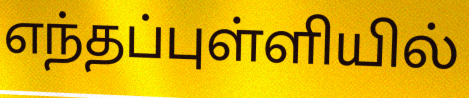
எந்தப்புள்ளியில்